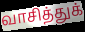
வாசித்துக்